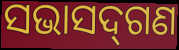
ସଭାସଦ୍‍ଗଣ